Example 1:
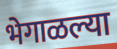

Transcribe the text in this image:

भेगाळल्या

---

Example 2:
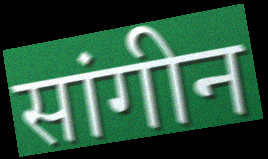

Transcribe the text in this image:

सांगीन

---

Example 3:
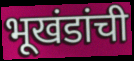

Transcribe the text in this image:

भूखंडांची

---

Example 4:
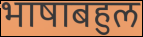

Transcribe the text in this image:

भाषाबहुल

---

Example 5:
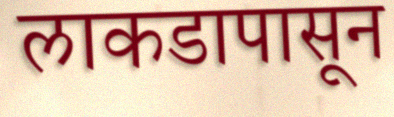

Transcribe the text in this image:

लाकडापासून